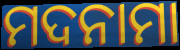
ମଦନାମା